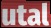
utal